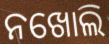
ନଖୋଲି